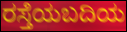
ರಸ್ತೆಯಬದಿಯ